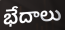
భేదాలు